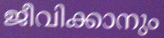
ജീവിക്കാനും